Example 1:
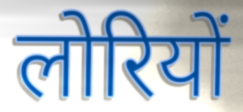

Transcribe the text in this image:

लोरियों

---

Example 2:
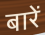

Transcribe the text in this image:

बारें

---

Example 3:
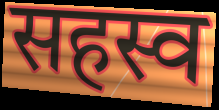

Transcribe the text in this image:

सहस्व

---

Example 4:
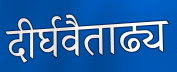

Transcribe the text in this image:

दीर्घवैताढ्य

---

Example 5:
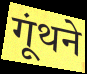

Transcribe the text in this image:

गूंथने